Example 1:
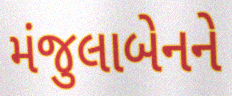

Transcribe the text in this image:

મંજુલાબેનને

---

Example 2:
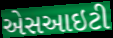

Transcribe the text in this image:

એસઆઇટી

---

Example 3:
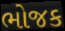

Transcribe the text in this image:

ભોજક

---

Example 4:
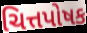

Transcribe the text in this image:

ચિત્તપોષક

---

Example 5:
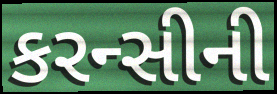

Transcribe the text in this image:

કરન્સીની